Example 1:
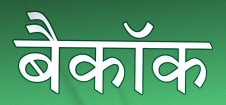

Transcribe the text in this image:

बैकॉक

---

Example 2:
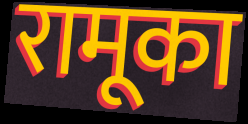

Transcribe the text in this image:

रामूका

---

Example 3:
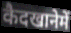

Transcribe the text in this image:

कैदखानेमें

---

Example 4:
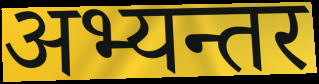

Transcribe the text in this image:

अभ्यन्तर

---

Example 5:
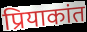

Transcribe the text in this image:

प्रियाकांत